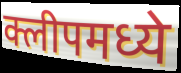
क्लीपमध्ये